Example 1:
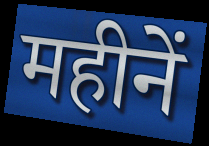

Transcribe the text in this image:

महीनें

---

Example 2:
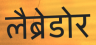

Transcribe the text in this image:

लैब्रेडोर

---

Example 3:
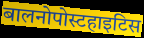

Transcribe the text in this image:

बालनोपोस्टहाइटिस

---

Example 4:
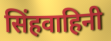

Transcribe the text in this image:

सिंहवाहिनी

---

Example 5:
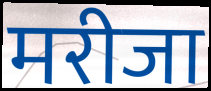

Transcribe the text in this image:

मरीजा